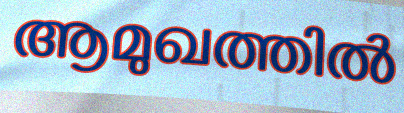
ആമുഖത്തിൽ